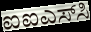
ಐಐಎಸ್‌ಸಿ